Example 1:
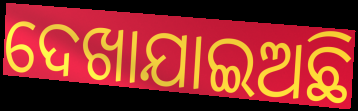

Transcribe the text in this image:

ଦେଖାଯାଇଅଛି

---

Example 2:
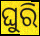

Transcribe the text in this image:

ଘୁରି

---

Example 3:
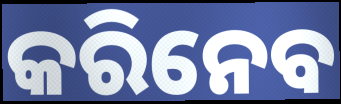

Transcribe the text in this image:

କରିନେବ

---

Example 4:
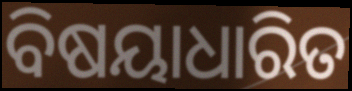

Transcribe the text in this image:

ବିଷୟାଧାରିତ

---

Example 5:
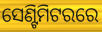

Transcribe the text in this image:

ସେଣ୍ଟିମିଟରରେ